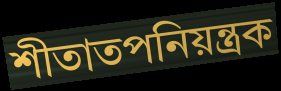
শীতাতপনিয়ন্ত্রক